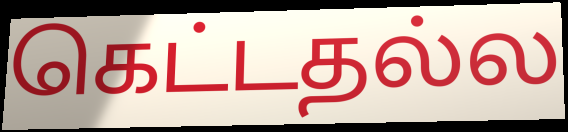
கெட்டதல்ல